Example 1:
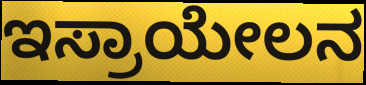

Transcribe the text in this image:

ಇಸ್ರಾಯೇಲನ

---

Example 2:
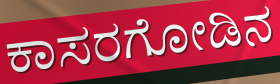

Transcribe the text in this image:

ಕಾಸರಗೋಡಿನ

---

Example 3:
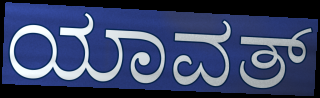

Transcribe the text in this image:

ಯಾವತ್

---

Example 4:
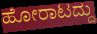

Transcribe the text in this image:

ಹೋರಾಟದ್ದು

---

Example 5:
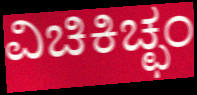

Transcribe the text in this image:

ವಿಚಿಕಿಚ್ಛಂ